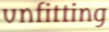
unfitting